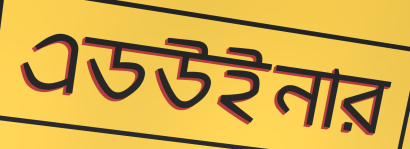
এডউইনার